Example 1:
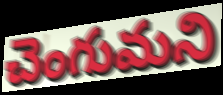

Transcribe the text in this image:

చెంగుమని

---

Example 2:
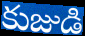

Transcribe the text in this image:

కుజుడి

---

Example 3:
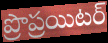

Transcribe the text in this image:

ప్రొప్రయిటర్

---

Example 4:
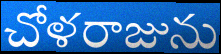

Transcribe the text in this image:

చోళరాజును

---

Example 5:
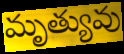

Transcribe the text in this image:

మృత్యువు